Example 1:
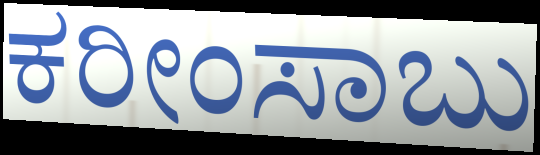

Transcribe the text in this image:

ಕರೀಂಸಾಬು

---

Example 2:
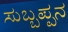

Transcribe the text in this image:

ಸುಬ್ಬಪ್ಪನ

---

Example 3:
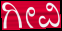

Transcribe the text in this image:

ಗೀವಿ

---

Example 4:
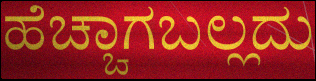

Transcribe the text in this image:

ಹೆಚ್ಚಾಗಬಲ್ಲದು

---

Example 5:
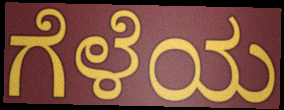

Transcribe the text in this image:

ಗೆಳೆಯ